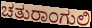
ಚತುರಾಂಗುಲಿ